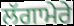
ਲੱਗਾਮੇਰੇ